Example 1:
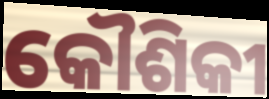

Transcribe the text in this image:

କୌଶିକୀ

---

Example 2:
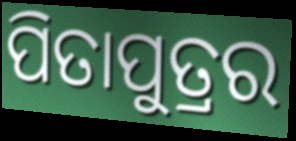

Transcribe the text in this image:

ପିତାପୁତ୍ରର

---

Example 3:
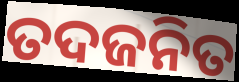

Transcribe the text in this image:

ତଦଜନିତ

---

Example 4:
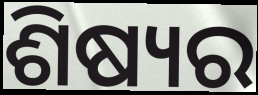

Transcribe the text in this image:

ଶିଷ୍ୟର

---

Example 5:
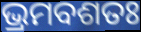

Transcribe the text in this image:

ଭ୍ରମବଶତଃ